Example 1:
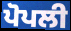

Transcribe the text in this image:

ਪੋਪਲੀ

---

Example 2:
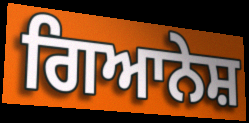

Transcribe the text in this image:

ਗਿਆਨੇਸ਼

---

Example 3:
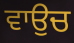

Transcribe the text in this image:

ਵਾਉਚ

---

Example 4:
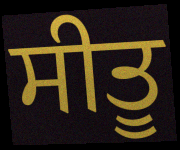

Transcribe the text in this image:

ਸੀਤੂ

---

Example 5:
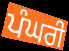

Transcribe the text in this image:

ਪੰਘਰੀ